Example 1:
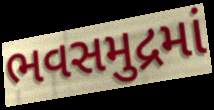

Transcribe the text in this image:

ભવસમુદ્રમાં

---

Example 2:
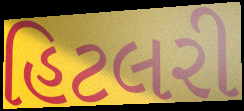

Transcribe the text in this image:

હિટલરી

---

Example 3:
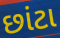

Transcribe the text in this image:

છાંટા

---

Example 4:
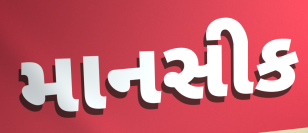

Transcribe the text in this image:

માનસીક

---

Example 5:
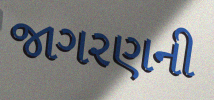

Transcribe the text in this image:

જાગરણની